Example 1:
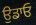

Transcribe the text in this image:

ਉਡਾਓ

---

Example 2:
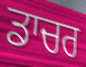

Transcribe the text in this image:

ਡਾਚਰ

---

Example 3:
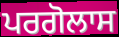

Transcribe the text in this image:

ਪਰਗੋਲਾਸ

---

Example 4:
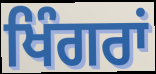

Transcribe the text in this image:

ਖਿੰਗਰਾਂ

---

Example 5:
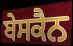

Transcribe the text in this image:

ਬੇਸਕੈਨ